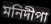
মনিদীপা